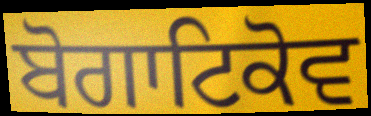
ਬੋਗਾਟਿਕੋਵ